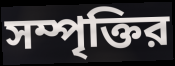
সম্পৃক্তির